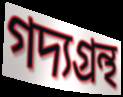
গদ্যগ্রন্থ